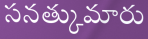
సనత్కుమారు